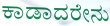
ಕಾಡಾದರೇನು